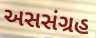
અસસંગ્રહ